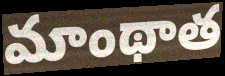
మాంథాత